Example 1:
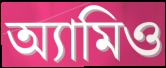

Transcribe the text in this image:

অ্যামিও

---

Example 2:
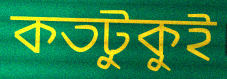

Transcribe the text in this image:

কতটুকুই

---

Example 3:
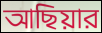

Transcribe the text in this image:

আছিয়ার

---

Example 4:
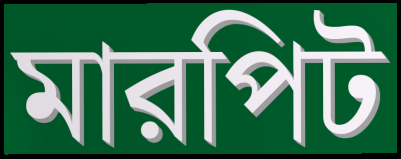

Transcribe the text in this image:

মারপিট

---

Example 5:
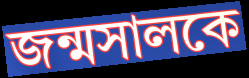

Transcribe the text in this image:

জন্মসালকে